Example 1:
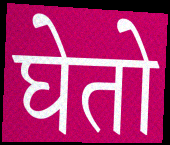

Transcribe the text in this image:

घेतो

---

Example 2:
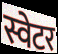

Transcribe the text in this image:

स्वेटर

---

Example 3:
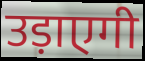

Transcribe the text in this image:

उड़ाएगी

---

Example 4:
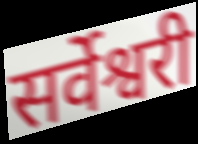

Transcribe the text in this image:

सर्वेश्वरी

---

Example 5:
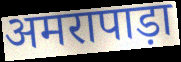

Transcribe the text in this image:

अमरापाड़ा